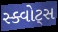
સ્ક્વોટ્સ